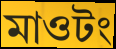
মাওটং